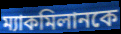
ম্যাকমিলানকে